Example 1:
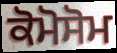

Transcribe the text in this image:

ਕੋਮੋਸੋਮ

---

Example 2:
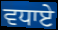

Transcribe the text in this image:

ਵਧਾਏ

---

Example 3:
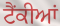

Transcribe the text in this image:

ਟੈਂਕੀਆਂ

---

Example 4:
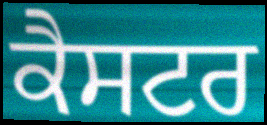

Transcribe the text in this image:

ਕੈਸਟਰ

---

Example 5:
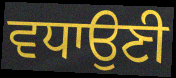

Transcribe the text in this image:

ਵਧਾਉਣੀ